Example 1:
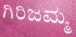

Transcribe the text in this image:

ಗಿರಿಜಮ್ಮ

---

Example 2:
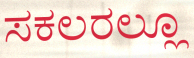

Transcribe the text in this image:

ಸಕಲರಲ್ಲೂ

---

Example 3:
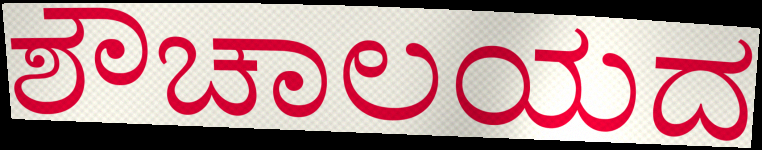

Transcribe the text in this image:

ಶೌಚಾಲಯದ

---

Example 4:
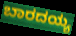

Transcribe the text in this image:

ಬಾರದಯ್ಯ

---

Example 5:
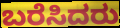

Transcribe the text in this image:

ಬರೆಸಿದರು